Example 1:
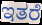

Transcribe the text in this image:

ಇತರೆ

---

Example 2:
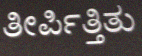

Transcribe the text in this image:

ತೀರ್ಪಿತ್ತಿತು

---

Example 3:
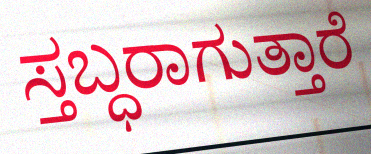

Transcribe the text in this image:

ಸ್ತಬ್ಧರಾಗುತ್ತಾರೆ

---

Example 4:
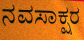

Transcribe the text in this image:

ನವಸಾಕ್ಷರ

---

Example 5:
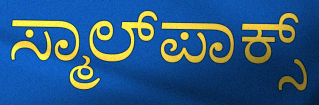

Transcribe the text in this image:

ಸ್ಮಾಲ್‌ಪಾಕ್ಸ್